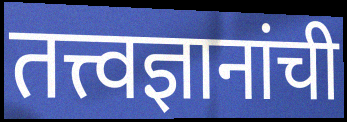
तत्त्वज्ञानांची